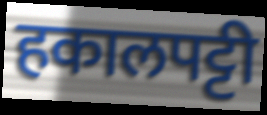
हकालपट्टी